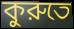
কুরুতে